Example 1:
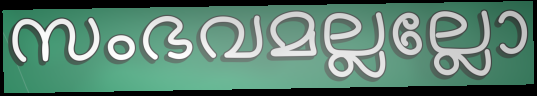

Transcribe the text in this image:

സംഭവമല്ലല്ലോ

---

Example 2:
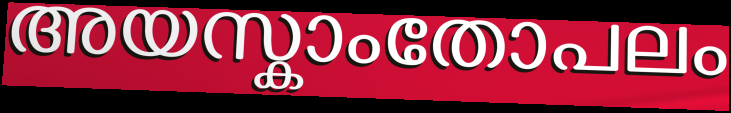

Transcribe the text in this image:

അയസ്കാംതോപലം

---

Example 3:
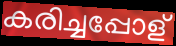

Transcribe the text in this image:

കരിച്ചപ്പോള്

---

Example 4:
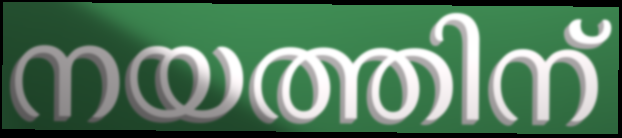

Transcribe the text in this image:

നയത്തിന്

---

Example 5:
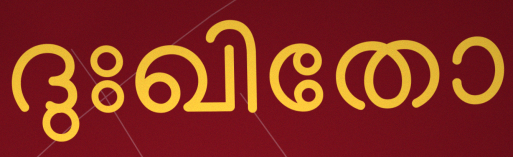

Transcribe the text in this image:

ദുഃഖിതോ